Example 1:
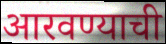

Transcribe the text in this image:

आरवण्याची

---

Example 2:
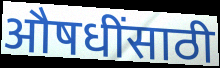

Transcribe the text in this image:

औषधींसाठी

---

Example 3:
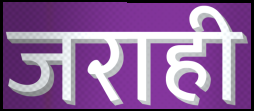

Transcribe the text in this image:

जराही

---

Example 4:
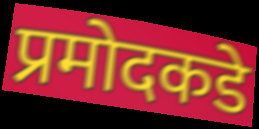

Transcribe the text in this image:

प्रमोदकडे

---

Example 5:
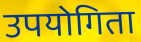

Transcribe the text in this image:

उपयोगिता